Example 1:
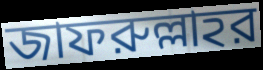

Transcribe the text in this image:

জাফরুল্লাহর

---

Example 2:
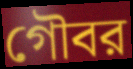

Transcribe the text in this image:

গৌবর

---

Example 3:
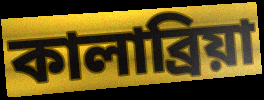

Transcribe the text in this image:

কালাব্রিয়া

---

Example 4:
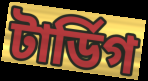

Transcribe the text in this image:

টার্ডিগ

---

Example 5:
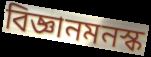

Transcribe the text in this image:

বিজ্ঞানমনস্ক